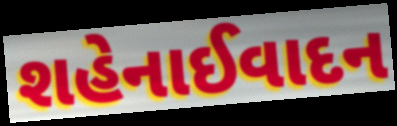
શહેનાઈવાદન